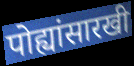
पोह्यांसारखी